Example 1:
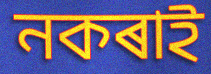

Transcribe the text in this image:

নকৰাই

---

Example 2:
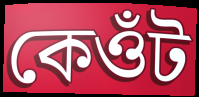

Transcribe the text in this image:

কেওঁট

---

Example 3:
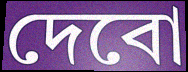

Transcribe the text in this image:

দেবো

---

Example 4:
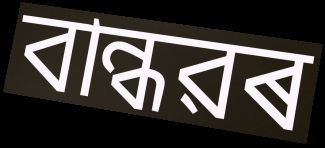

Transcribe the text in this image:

বান্ধৱৰ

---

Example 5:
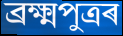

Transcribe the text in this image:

ব্ৰক্ষ্মপুত্ৰৰ